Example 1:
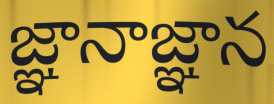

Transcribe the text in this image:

జ్ఞానాజ్ఞాన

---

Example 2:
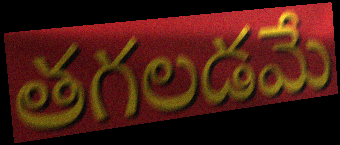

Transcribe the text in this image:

తగలడమే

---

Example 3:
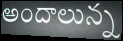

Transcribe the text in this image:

అందాలున్న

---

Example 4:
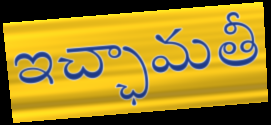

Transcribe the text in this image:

ఇచ్ఛామతీ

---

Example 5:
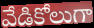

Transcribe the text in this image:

వేడికోలుగా